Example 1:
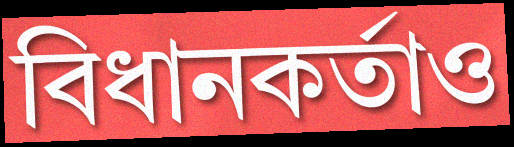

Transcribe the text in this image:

বিধানকর্তাও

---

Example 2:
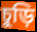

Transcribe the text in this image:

চুড়ি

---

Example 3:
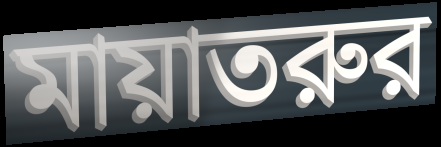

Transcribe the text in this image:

মায়াতরুর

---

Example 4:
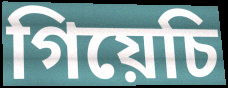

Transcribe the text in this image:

গিয়েচি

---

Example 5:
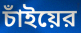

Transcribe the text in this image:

চাঁইয়ের